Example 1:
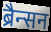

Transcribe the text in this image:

ब्रैन्सन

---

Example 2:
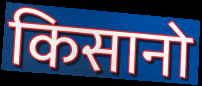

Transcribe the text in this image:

किसानो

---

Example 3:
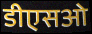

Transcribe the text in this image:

डीएसओ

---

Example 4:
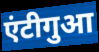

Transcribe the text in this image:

एंटीगुआ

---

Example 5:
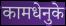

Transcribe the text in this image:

कामधेनुके